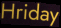
Hriday